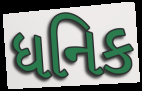
ધનિક